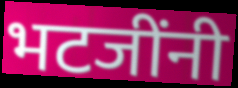
भटजींनी